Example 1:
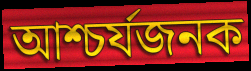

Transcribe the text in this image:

আশ্চর্যজনক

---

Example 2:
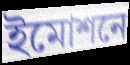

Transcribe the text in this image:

ইমোশনে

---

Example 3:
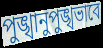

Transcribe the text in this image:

পুঙ্খানুপুঙ্খভাবে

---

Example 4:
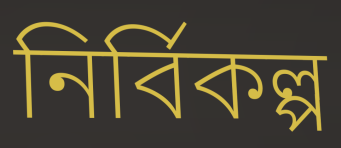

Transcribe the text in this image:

নির্বিকল্প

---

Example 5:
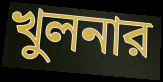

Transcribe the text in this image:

খুলনার